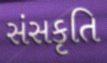
સંસકૃતિ